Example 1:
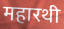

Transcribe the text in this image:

महारथी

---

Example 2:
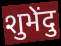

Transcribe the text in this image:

शुभेंदु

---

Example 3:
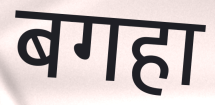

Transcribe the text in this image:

बगहा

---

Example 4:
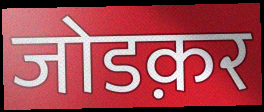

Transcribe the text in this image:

जोडक़र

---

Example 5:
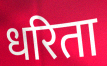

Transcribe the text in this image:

धरिता